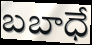
బబాధే